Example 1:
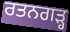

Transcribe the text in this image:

ਰਤਨਗੜ੍ਹ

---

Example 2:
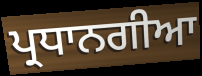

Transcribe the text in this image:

ਪ੍ਰਧਾਨਗੀਆ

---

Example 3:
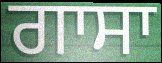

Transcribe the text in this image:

ਗਾਸਾ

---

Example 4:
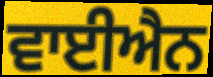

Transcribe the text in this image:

ਵਾਈਐਨ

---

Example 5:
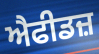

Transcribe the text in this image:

ਐਫੀਡਜ਼